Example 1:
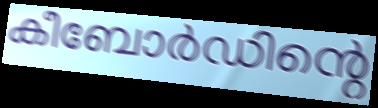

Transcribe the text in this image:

കീബോർഡിന്റെ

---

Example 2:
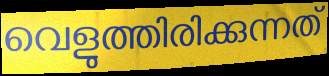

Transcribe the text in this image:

വെളുത്തിരിക്കുന്നത്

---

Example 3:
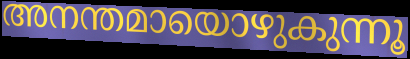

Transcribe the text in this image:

അനന്തമായൊഴുകുന്നൂ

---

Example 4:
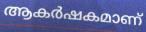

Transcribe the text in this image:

ആകർഷകമാണ്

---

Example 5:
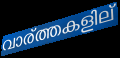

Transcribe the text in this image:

വാര്ത്തകളില്